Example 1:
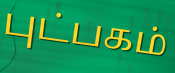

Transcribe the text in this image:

புட்பகம்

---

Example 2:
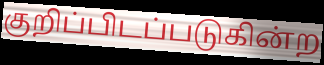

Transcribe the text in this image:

குறிப்பிடப்படுகின்ற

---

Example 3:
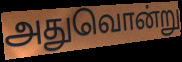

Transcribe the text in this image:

அதுவொன்று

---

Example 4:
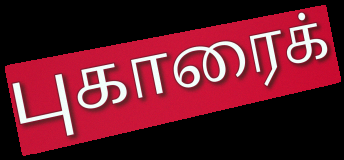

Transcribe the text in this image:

புகாரைக்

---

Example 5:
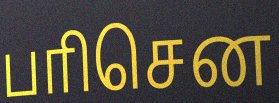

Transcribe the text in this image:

பரிசென